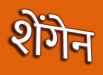
शेंगेन